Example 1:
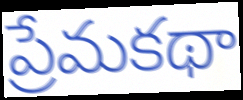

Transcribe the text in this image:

ప్రేమకథా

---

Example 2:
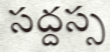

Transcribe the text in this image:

సద్దస్స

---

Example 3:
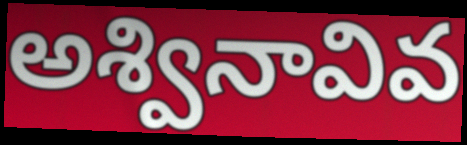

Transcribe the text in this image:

అశ్వినావివ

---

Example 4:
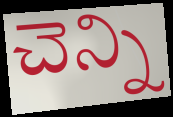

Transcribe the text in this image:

చెన్ని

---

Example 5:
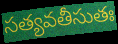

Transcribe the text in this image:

సత్యవతీసుతః